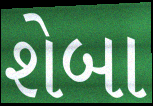
શેબા